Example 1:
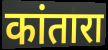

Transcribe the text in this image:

कांतारा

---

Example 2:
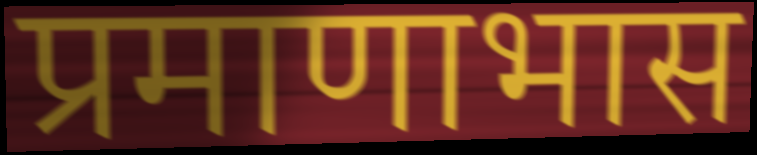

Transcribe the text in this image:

प्रमाणाभास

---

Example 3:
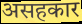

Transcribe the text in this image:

असहकार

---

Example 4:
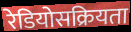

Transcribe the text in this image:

रेडियोसक्रियता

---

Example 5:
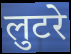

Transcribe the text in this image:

लुटरे